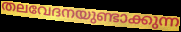
തലവേദനയുണ്ടാക്കുന്ന